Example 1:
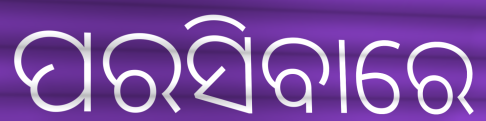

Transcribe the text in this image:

ପରସିବାରେ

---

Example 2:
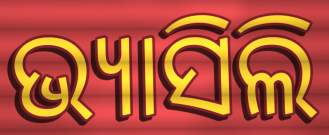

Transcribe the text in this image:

ଭ୍ୟାସିଲି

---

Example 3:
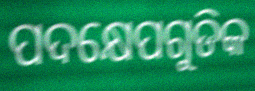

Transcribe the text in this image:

ପଦକ୍ଷେପଗୁଡିକ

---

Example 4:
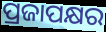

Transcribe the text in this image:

ପ୍ରଜାପକ୍ଷର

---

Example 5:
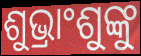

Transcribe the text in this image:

ଶୁଭ୍ରାଂଶୁଙ୍କୁ